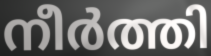
നീർത്തി